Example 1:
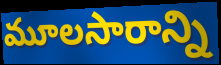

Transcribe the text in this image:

మూలసారాన్ని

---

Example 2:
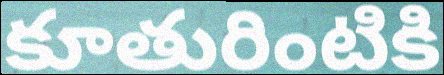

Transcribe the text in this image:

కూతురింటికి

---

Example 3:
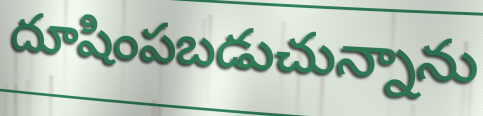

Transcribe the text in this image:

దూషింపబడుచున్నాను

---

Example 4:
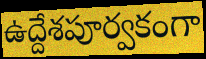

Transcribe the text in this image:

ఉద్దేశపూర్వకంగా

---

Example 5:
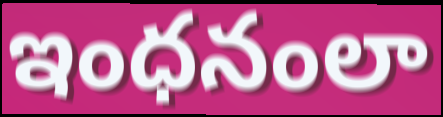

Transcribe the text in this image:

ఇంధనంలా